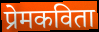
प्रेमकविता